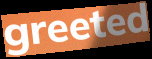
greeted